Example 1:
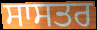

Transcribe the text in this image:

ਸਾਸਤਰ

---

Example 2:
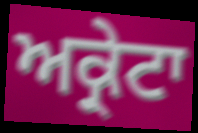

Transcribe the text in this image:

ਅਕ੍ਰੇਟਾ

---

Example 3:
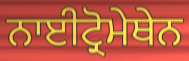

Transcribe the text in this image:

ਨਾਈਟ੍ਰੋਮੇਥੇਨ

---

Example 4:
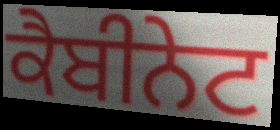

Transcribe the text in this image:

ਕੈਬੀਨੇਟ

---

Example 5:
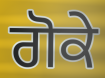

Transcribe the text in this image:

ਗੋਕੇ